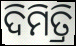
ଦିମିତ୍ରି